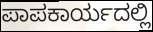
ಪಾಪಕಾರ್ಯದಲ್ಲಿ